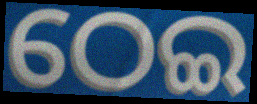
ଠେଇ